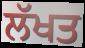
ਲੱਖਤ